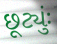
છૂટ્યુંઃ